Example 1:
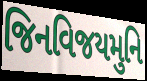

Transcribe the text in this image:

જિનવિજયમુનિ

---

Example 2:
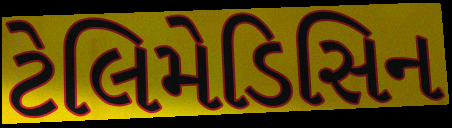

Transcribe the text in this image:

ટેલિમેડિસિન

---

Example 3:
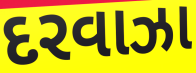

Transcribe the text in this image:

દરવાઝા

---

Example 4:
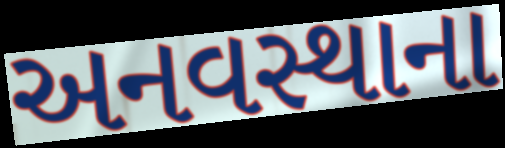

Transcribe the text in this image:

અનવસ્થાના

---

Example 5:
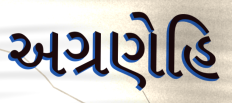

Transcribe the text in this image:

અગ્રણેહિ